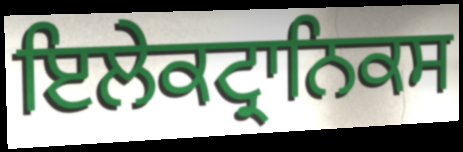
ਇਲੇਕਟ੍ਰਾਨਿਕਸ